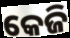
କେଜି